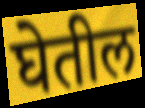
घेतील